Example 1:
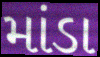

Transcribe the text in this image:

માંડા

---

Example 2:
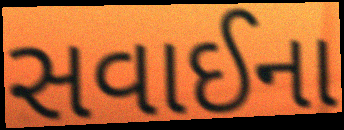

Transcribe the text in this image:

સવાઈના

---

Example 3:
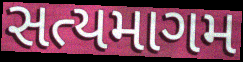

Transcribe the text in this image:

સત્યમાગમ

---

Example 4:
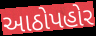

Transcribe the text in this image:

આઠોપહોર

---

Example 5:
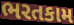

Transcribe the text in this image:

ભરતકામ